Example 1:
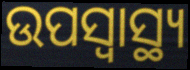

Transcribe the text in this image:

ଉପସ୍ୱାସ୍ଥ୍ୟ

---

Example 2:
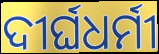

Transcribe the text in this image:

ଦୀର୍ଘଧର୍ମୀ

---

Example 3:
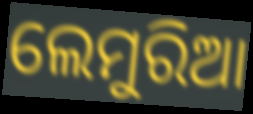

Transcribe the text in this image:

ଲେମୁରିଆ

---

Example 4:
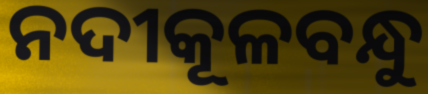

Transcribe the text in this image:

ନଦୀକୂଳବନ୍ଧୁ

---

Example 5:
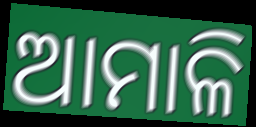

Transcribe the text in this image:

ଆମାଳି